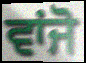
ਵਾਂਜੋ